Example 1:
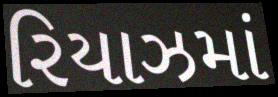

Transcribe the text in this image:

રિયાઝમાં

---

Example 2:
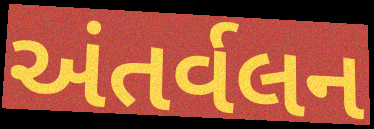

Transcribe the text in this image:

અંતર્વલન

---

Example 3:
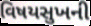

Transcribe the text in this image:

વિષયસુખની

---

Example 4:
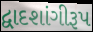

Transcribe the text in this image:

દ્વાદશાંગીરૂપ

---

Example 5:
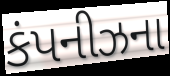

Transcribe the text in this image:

કંપનીઝના